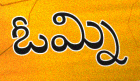
ఓమ్ని